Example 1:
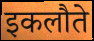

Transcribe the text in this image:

इकलौते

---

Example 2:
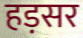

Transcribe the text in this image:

हड़सर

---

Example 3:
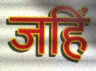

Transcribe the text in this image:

जहिं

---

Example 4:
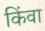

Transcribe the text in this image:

किंवा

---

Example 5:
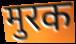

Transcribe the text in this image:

मुरक